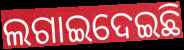
ଲଗାଇଦେଇଛି